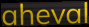
aheval